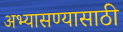
अभ्यासण्यासाठी